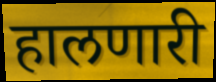
हालणारी